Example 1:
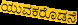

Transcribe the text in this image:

ಯುವಕರೊಡನೆ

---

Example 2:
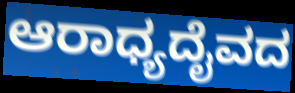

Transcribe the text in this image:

ಆರಾಧ್ಯದೈವದ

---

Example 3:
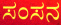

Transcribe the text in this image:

ಸಂಸನ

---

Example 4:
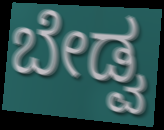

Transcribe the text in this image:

ಬೇಡ್ವ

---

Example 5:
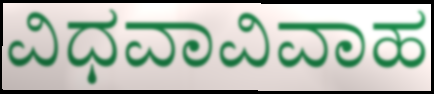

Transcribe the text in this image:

ವಿಧವಾವಿವಾಹ